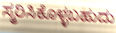
ಸ್ಮರಿಸಿಕೊಳ್ಳಬಹುದು